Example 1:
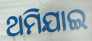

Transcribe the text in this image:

ଥମିଯାଇ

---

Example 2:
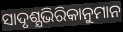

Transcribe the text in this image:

ସାଦୃଶ୍ଯଭିରିକାନୁମାନ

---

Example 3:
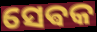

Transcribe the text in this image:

ସେଵକ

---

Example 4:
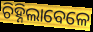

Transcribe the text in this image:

ଚିହ୍ନିଲାବେଳେ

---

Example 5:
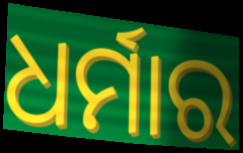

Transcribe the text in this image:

ଧର୍ମାର